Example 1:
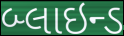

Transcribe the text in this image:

બ્લાઇન્ડ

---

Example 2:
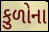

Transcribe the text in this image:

કુળોના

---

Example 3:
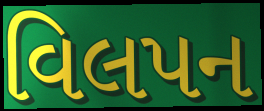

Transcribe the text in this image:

વિલપન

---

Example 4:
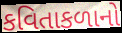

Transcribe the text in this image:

કવિતાકળાનો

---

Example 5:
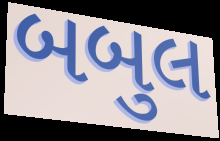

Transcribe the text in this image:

બબુલ